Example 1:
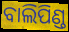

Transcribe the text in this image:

ବାଲିପିଣ୍ଡ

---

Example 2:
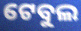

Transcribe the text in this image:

ଟେବୁଲ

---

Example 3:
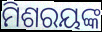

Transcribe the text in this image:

ମିଶରୟଙ୍କ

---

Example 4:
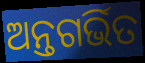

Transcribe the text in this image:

ଅନ୍ତଗର୍ଭିତ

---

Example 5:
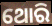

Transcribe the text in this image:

ଥୋରି